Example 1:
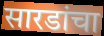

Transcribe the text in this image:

सारडांचा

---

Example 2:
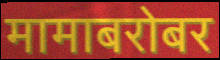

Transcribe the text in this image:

मामाबरोबर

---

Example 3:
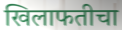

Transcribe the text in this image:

खिलाफतीचा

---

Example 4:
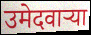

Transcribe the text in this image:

उमेदवाऱ्या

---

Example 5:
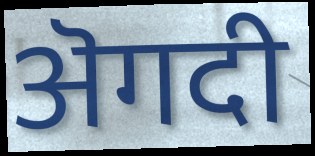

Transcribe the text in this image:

ऄगदी